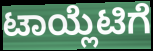
ಟಾಯ್ಲೆಟಿಗೆ